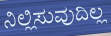
ನಿಲ್ಲಿಸುವುದಿಲ್ಲ